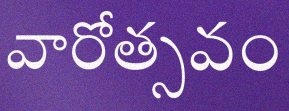
వారోత్సవం